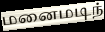
மனைமடிந்